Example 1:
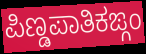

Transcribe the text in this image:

ಪಿಣ್ಡಪಾತಿಕಙ್ಗಂ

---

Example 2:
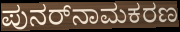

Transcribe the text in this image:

ಪುನರ್‌ನಾಮಕರಣ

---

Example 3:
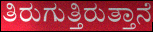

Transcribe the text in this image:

ತಿರುಗುತ್ತಿರುತ್ತಾನೆ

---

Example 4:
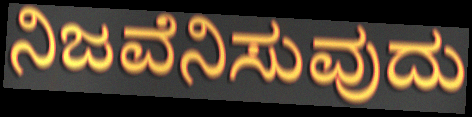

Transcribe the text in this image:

ನಿಜವೆನಿಸುವುದು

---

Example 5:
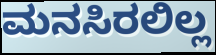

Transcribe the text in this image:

ಮನಸಿರಲಿಲ್ಲ